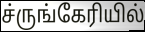
ச்ருங்கேரியில்